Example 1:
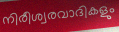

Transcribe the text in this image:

നിരീശ്വരവാദികളും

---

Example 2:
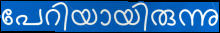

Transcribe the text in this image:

പേറിയായിരുന്നു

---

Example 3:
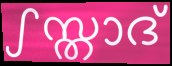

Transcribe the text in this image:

ഽസ്താദ്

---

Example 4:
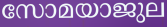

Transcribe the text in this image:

സോമയാജുല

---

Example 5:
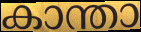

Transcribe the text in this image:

കാന്താ